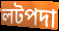
লটপদা